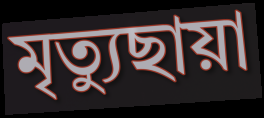
মৃত্যুছায়া